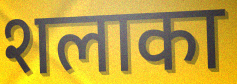
शलाका